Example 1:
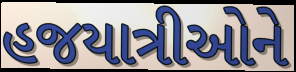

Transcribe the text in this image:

હજયાત્રીઓને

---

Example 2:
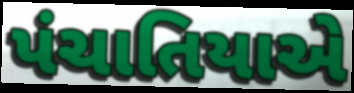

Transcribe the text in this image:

પંચાતિયાએ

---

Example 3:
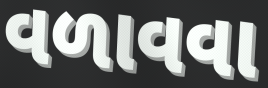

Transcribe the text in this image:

વળાવવા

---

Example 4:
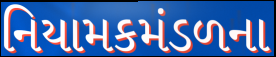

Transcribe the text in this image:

નિયામકમંડળના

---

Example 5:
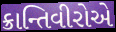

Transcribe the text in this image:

ક્રાન્તિવીરોએ